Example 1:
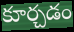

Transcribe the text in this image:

కూర్చడం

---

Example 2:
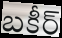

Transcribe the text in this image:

బకీర్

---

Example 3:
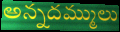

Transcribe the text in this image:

అన్నదమ్ములు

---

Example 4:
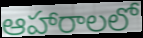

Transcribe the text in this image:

ఆహారాలలో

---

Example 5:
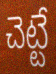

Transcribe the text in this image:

చెట్టే